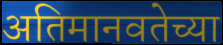
अतिमानवतेच्या